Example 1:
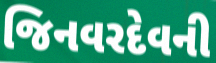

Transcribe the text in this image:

જિનવરદેવની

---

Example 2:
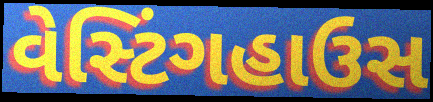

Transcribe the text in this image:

વેસ્ટિંગહાઉસ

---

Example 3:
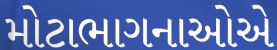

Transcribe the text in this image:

મોટાભાગનાઓએ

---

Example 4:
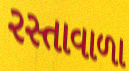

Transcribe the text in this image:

રસ્તાવાળા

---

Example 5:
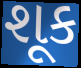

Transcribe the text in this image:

શૂક